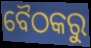
ବୈଠକରୁ